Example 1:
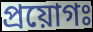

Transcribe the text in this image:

প্রয়োগঃ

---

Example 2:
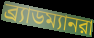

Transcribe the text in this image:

ব্র্যাডম্যানরা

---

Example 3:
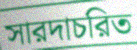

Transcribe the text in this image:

সারদাচরিত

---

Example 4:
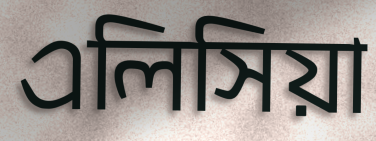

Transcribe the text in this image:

এলিসিয়া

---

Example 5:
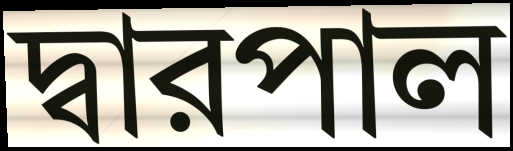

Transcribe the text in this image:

দ্বারপাল